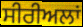
ਸੀਰੀਅਲਾਂ